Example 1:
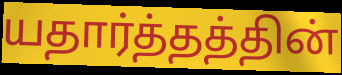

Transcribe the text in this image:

யதார்த்தத்தின்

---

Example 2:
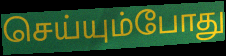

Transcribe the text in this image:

செய்யும்போது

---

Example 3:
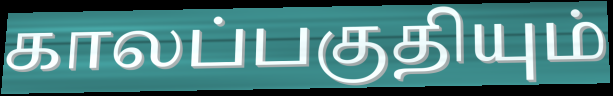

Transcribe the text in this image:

காலப்பகுதியும்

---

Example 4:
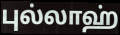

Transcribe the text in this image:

புல்லாஹ்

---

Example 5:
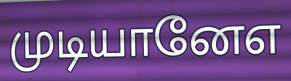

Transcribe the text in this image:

முடியானேஎ